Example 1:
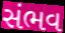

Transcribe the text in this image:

સંભવ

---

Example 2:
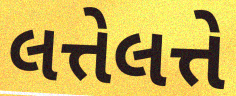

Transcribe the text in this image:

લત્તેલત્તે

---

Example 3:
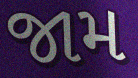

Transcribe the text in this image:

જામ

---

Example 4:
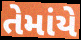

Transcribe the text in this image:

તેમાંયે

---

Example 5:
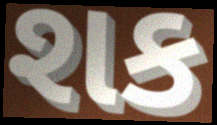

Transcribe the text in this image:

શક